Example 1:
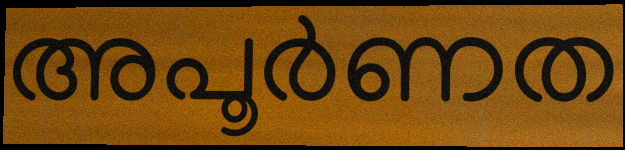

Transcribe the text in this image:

അപൂർണത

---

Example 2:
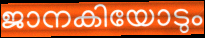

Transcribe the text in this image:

ജാനകിയോടും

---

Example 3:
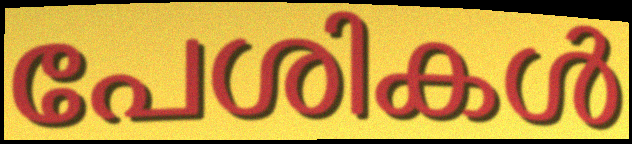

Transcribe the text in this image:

പേശികൾ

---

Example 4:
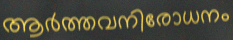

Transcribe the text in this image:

ആർത്തവനിരോധനം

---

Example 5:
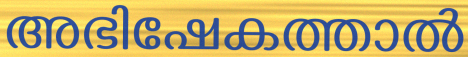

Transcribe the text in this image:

അഭിഷേകത്താൽ